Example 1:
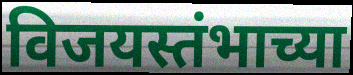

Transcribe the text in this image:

विजयस्तंभाच्या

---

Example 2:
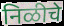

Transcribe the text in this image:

निळीचे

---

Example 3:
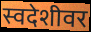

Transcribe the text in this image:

स्वदेशीवर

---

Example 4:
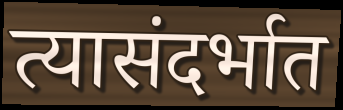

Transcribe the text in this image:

त्यासंदर्भात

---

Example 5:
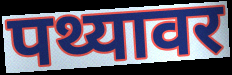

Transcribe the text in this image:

पथ्यावर